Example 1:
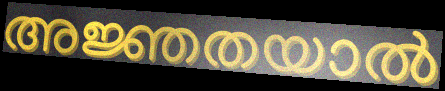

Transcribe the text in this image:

അജ്ഞതയാൽ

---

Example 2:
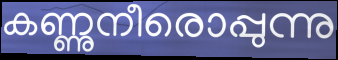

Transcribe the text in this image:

കണ്ണുനീരൊപ്പുന്നു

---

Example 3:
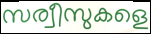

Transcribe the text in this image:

സര്വീസുകളെ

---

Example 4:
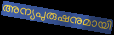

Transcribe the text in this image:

അന്യപുരുഷനുമായി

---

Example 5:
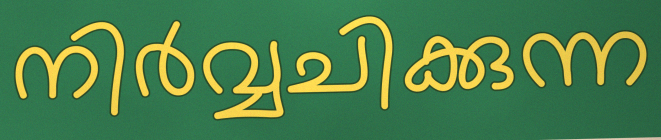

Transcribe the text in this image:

നിർവ്വചിക്കുന്ന